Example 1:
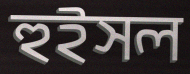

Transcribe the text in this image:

হুইসল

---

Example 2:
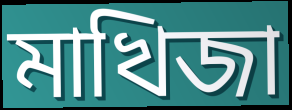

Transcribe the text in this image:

মাখিজা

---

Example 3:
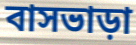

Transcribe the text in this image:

বাসভাড়া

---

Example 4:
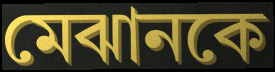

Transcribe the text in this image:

মেঝানকে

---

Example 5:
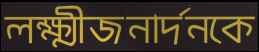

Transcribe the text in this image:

লক্ষ্মীজনার্দনকে